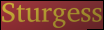
Sturgess